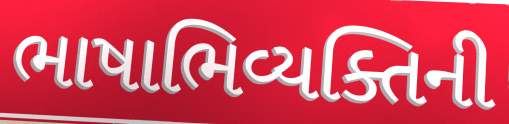
ભાષાભિવ્યક્તિની